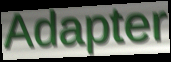
Adapter